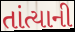
તાંત્યાની